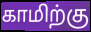
காமிற்கு